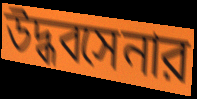
উদ্ধবসেনার